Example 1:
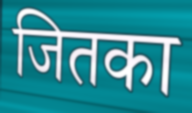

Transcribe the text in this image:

जितका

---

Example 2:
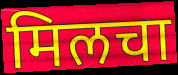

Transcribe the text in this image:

मिलचा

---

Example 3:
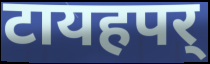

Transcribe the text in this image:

टायहपर्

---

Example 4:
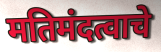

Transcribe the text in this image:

मतिमंदत्वाचे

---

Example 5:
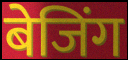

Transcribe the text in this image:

बेजिंग